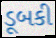
ડૂબકી